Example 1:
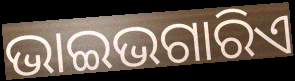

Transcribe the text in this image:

ଭାଇଭଗାରିଏ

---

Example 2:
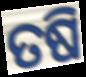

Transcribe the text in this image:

ତଷି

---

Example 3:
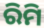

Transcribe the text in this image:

ରିମି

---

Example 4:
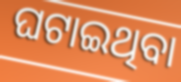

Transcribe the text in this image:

ଘଟାଇଥିବା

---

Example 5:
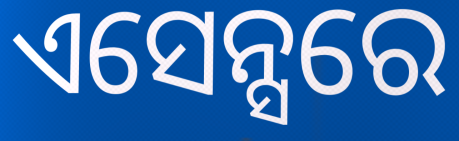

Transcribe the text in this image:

ଏସେନ୍ସରେ